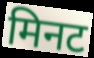
मिनट